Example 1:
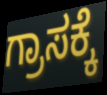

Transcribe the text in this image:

ಗ್ರಾಸಕ್ಕೆ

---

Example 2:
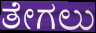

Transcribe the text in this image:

ತೇಗಲು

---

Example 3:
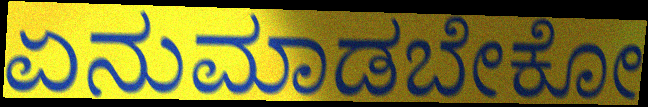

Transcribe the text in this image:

ಏನುಮಾಡಬೇಕೋ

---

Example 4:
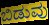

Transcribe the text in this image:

ಬಿಡುವು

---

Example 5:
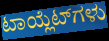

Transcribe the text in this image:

ಟಾಯ್ಲೆಟ್‌ಗಳು